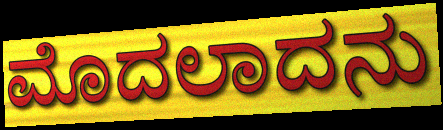
ಮೊದಲಾದನು